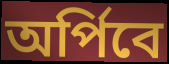
অর্পিবে